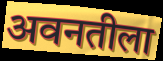
अवनतीला